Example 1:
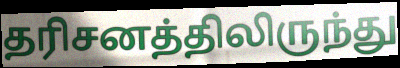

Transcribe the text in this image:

தரிசனத்திலிருந்து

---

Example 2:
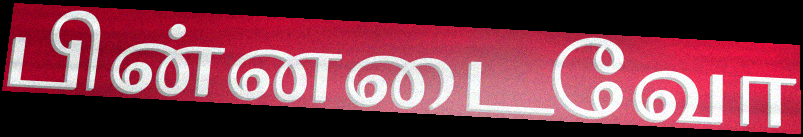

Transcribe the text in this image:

பின்னடைவோ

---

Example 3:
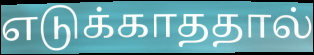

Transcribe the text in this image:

எடுக்காததால்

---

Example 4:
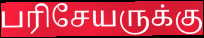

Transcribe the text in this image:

பரிசேயருக்கு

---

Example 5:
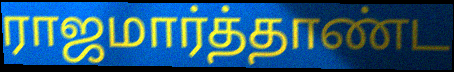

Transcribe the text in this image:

ராஜமார்த்தாண்ட